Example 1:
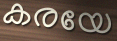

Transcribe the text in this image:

കരയേ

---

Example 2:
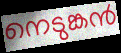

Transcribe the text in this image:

നെടുങ്കൻ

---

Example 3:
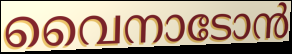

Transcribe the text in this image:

വൈനാടോൻ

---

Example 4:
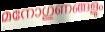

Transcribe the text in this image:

മനോഗുണങ്ങളും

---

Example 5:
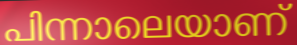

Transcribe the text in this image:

പിന്നാലെയാണ്